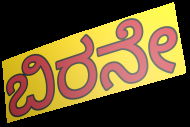
ಬಿರನೇ